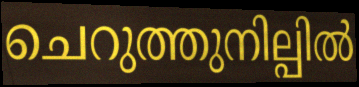
ചെറുത്തുനില്പിൽ